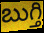
బుగ్తి